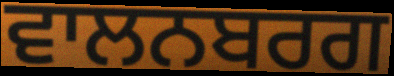
ਵਾਲਨਬਰਗ